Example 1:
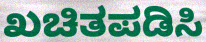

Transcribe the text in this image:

ಖಚಿತಪಡಿಸಿ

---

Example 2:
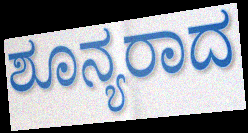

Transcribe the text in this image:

ಶೂನ್ಯರಾದ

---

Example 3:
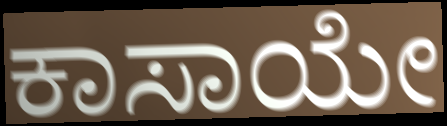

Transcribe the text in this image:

ಕಾಸಾಯೇ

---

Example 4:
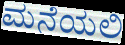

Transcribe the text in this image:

ಮನೆಯಲಿ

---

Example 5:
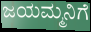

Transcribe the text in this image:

ಜಯಮ್ಮನಿಗೆ